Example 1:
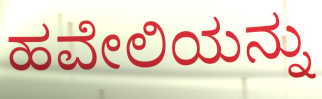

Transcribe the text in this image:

ಹವೇಲಿಯನ್ನು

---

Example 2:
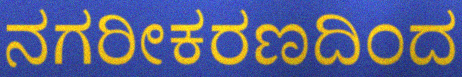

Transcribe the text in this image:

ನಗರೀಕರಣದಿಂದ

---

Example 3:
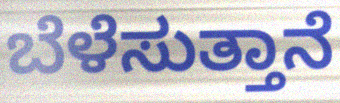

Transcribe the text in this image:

ಬೆಳೆಸುತ್ತಾನೆ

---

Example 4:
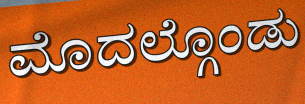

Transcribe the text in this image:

ಮೊದಲ್ಗೊಂಡು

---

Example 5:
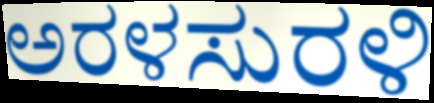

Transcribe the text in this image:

ಅರಳಸುರಳಿ